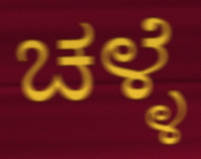
ಚಳ್ಳೆ